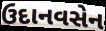
ઉદાનવસેન